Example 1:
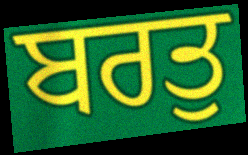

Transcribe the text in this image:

ਬਰਤੁ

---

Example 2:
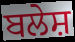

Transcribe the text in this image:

ਬਲੇਸ਼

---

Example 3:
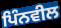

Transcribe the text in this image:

ਪਿੰਨਵੀਲ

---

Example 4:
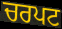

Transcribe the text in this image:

ਚਰਪਟ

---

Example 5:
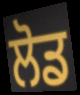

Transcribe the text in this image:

ਲੋਡ